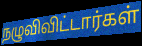
நழுவிவிட்டார்கள்